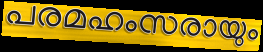
പരമഹംസരായും